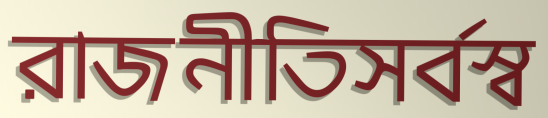
রাজনীতিসর্বস্ব